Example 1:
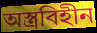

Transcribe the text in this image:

অস্ত্রবিহীন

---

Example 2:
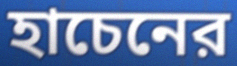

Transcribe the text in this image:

হাচেনের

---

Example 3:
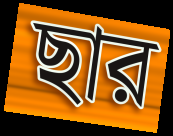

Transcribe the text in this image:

ছার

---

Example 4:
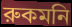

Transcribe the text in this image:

রুকমনি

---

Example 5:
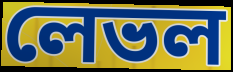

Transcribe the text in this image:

লেভল